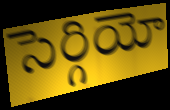
సెర్గియో